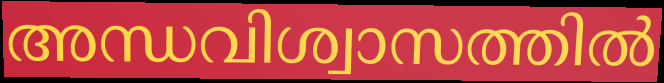
അന്ധവിശ്വാസത്തിൽ